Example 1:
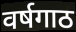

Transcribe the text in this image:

वर्षगाठ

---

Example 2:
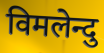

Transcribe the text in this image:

विमलेन्दु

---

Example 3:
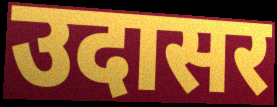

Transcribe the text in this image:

उदासर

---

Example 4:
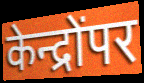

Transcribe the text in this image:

केन्द्रोंपर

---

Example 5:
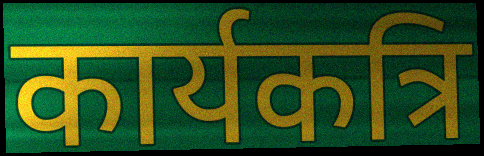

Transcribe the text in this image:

कार्यकत्रि